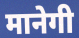
मानेगी